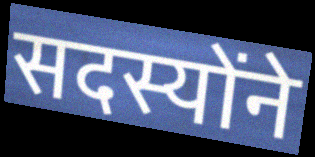
सदस्योंने